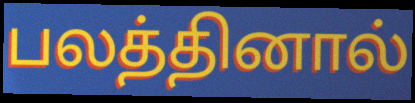
பலத்தினால்